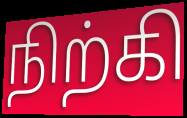
நிற்கி